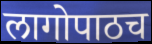
लागोपाठच